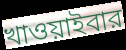
খাওয়াইবার